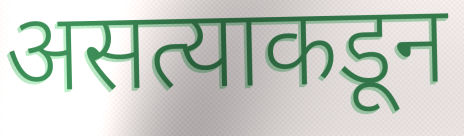
असत्याकडून